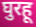
घुरहू